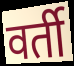
वर्ती